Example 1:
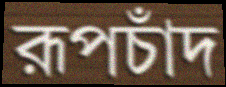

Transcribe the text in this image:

রূপচাঁদ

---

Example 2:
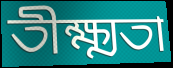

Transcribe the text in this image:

তীক্ষ্মতা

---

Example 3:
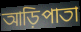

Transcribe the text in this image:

আড়িপাতা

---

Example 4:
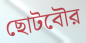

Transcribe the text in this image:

ছোটবৌর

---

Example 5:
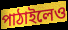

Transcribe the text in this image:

পাঠাইলেও